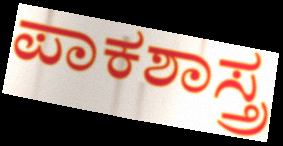
ಪಾಕಶಾಸ್ತ್ರ